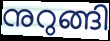
നുറുങ്ങി